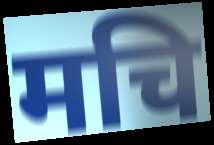
मचि